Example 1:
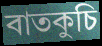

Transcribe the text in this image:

বাতকুচি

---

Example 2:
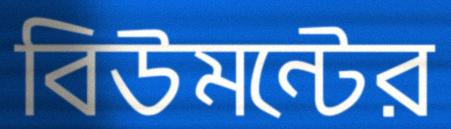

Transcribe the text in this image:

বিউমন্টের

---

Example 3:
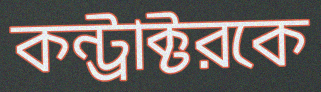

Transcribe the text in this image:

কন্ট্রাক্টরকে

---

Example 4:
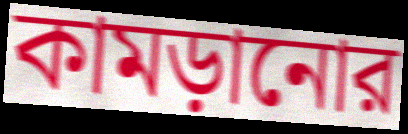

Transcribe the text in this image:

কামড়ানোর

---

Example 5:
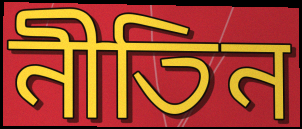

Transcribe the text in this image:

নীতিন